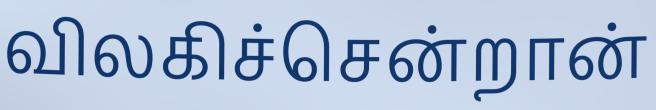
விலகிச்சென்றான்